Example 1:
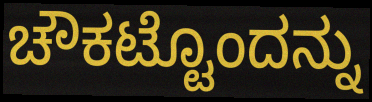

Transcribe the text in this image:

ಚೌಕಟ್ಟೊಂದನ್ನು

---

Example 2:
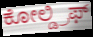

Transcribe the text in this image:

ಕೋಲ್ಡ್ರಿಫ್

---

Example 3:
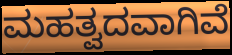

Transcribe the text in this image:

ಮಹತ್ವದವಾಗಿವೆ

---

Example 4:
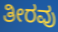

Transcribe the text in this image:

ತೀರವು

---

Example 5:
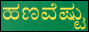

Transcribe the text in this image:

ಹಣವೆಷ್ಟು